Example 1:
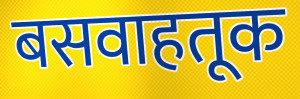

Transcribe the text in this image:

बसवाहतूक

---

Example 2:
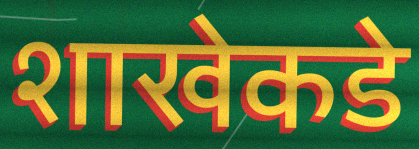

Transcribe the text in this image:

शाखेकडे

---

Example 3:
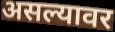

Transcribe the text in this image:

असल्यावर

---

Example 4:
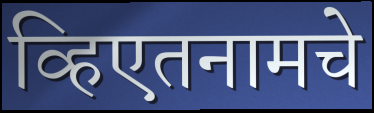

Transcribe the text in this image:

व्हिएतनामचे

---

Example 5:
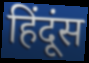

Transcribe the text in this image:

हिंदूंस